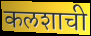
कलशाची